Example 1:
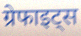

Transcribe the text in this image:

ग्रेफाइट्स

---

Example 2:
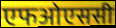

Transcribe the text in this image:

एफओएससी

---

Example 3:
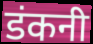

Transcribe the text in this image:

डंकनी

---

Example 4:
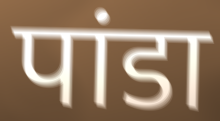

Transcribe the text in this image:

पांडा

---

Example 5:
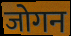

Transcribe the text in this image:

जोगन